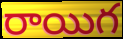
రాయిగ